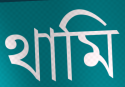
থামি